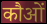
कौओं